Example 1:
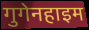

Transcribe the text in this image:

गुगेनहाइम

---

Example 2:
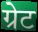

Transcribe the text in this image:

ग्रेट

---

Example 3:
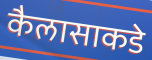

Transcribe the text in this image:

कैलासाकडे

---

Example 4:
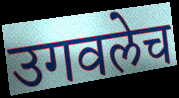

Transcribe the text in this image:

उगवलेच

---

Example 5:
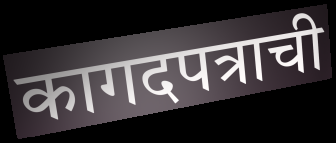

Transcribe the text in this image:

कागदपत्राची